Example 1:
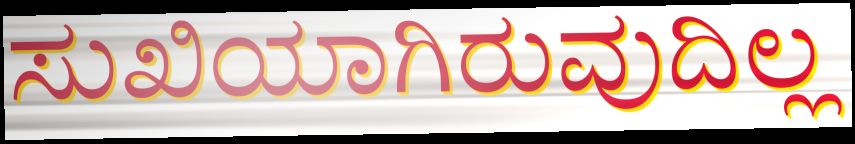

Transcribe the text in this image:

ಸುಖಿಯಾಗಿರುವುದಿಲ್ಲ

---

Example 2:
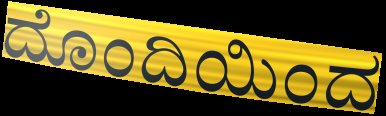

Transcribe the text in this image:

ದೊಂದಿಯಿಂದ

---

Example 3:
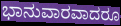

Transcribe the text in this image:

ಭಾನುವಾರವಾದರೂ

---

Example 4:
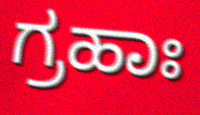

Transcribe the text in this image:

ಗ್ರಹಾಃ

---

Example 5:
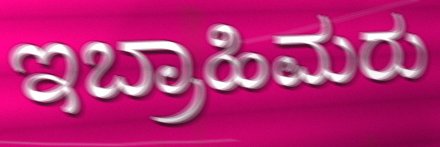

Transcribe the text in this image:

ಇಬ್ರಾಹಿಮರು